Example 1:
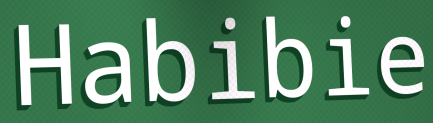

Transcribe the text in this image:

Habibie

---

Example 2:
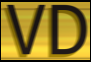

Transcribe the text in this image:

VD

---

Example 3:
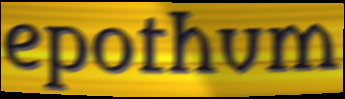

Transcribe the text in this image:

epothum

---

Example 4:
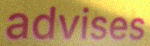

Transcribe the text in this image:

advises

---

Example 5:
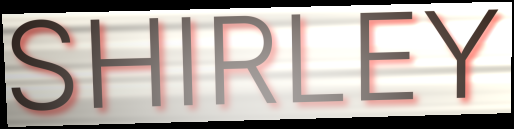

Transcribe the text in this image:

SHIRLEY